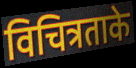
विचित्रताके